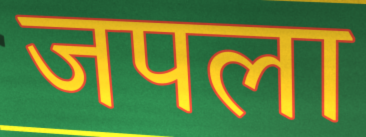
जपला